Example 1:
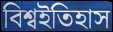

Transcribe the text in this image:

বিশ্বইতিহাস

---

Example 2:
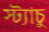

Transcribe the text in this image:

স্ট্যাচু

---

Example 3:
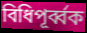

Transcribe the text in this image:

বিধিপূর্ব্বক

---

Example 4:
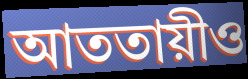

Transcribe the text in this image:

আততায়ীও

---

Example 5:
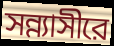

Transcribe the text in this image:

সন্ন্যাসীরে